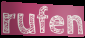
rufen